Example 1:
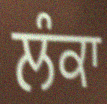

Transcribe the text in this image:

ਲੰਕਾ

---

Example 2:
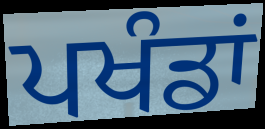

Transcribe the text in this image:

ਪਖੰਡਾਂ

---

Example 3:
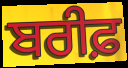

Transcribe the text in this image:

ਬਰੀਫ਼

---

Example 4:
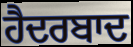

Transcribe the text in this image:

ਹੈਦਰਬਾਦ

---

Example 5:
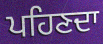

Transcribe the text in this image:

ਪਹਿਣਦਾ